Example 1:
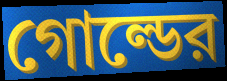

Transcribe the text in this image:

গোল্ডের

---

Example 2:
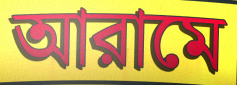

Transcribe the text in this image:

আরামে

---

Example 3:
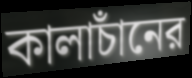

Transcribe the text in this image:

কালাচাঁনের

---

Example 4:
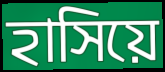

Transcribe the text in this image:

হাসিয়ে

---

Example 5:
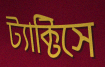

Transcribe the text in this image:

ট্যাক্টিসে